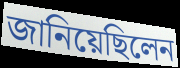
জানিয়েছিলেন